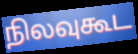
நிலவுகூட